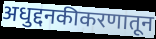
अधुद्दनकीकरणातून